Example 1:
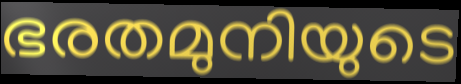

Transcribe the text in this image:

ഭരതമുനിയുടെ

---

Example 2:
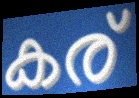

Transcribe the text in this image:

കര്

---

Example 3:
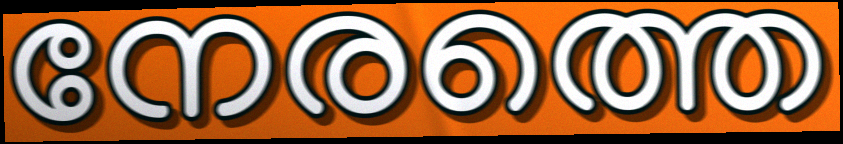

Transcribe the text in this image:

നേരത്തെ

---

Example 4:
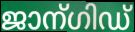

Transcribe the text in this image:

ജാന്ഗിഡ്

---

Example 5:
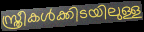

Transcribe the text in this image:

സ്ത്രീകൾക്കിടയിലുള്ള